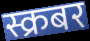
स्‍क्रबर